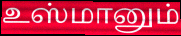
உஸ்மானும்